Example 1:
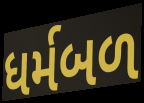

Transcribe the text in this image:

ધર્મબળ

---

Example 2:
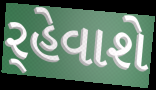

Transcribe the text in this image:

ર્‌હેવાશે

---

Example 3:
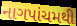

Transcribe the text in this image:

નાગપાંચમથી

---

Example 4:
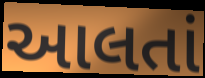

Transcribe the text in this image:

આલતાં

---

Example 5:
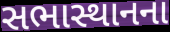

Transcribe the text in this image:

સભાસ્થાનના